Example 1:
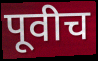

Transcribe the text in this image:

पूवीच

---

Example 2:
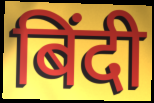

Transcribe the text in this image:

बिंदी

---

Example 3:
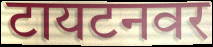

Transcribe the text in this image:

टायटनवर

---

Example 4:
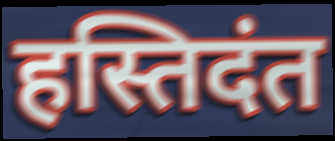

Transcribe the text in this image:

हस्तिदंत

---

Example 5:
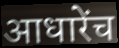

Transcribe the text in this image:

आधारेंच